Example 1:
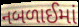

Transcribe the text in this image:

નબળાઈમાં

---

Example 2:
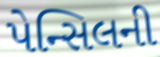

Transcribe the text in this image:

પેન્સિલની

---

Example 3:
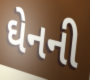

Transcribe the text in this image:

ઘેનની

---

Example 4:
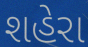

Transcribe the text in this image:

શહેરા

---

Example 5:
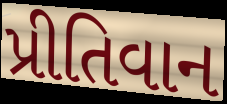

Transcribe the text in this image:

પ્રીતિવાન